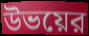
উভয়ের